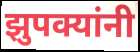
झुपक्यांनी